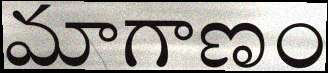
మాగాణం